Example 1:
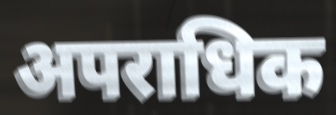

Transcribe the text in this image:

अपराधिक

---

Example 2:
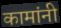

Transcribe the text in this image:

कामांनी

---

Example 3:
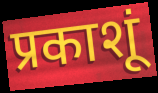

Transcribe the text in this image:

प्रकाशूं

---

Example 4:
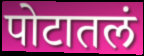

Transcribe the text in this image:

पोटातलं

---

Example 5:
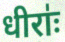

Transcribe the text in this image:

धीराः॑